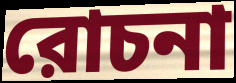
রোচনা